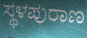
ಸ್ಥಳಪುರಾಣ